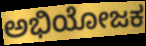
ಅಭಿಯೋಜಕ